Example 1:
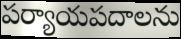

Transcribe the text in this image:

పర్యాయపదాలను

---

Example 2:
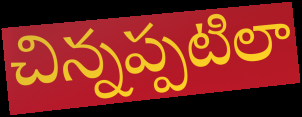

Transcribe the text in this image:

చిన్నప్పటిలా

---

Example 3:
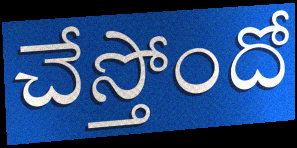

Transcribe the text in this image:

చేస్తోందో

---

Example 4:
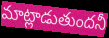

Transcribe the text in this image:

మాట్లాడుతుందనీ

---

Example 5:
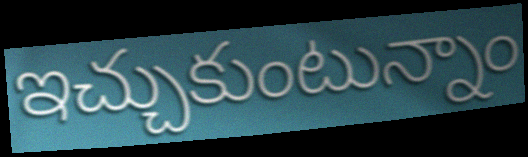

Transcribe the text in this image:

ఇచ్చుకుంటున్నాం